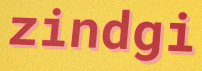
zindgi